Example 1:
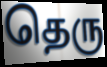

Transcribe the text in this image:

தெரு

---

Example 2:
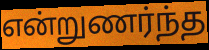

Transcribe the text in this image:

என்றுணர்ந்த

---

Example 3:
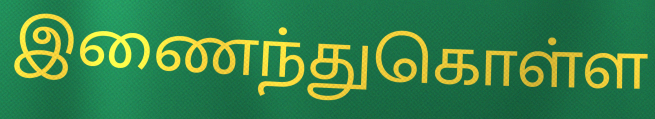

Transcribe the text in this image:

இணைந்துகொள்ள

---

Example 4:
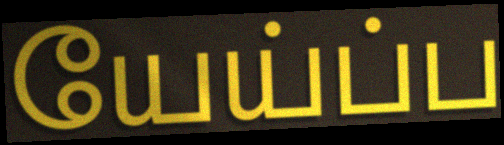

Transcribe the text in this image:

யேய்ப்ப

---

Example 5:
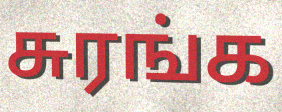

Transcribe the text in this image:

சுரங்க